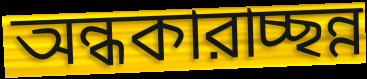
অন্ধকারাচ্ছন্ন